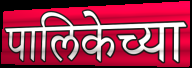
पालिकेच्या